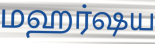
மஹர்ஷய